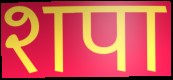
शपा